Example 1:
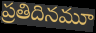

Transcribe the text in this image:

ప్రతిదినమూ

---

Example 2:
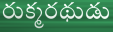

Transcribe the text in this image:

రుక్మరథుడు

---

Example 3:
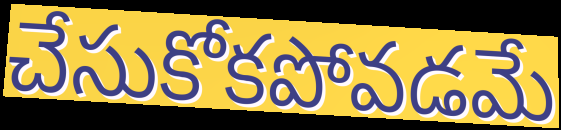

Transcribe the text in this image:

చేసుకోకపోవడమే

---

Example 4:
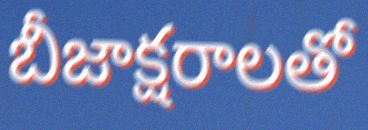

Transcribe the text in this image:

బీజాక్షరాలతో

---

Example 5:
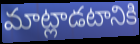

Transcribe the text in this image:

మాట్లాడటానికి